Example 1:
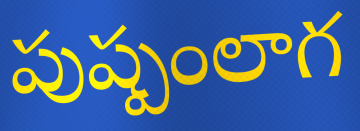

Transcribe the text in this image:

పుష్పంలాగ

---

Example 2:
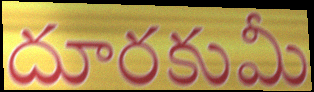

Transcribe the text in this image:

దూరకుమీ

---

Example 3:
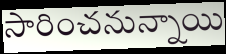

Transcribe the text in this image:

సారించనున్నాయి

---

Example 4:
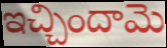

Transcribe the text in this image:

ఇచ్చిందామె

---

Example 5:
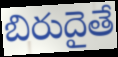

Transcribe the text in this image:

బిరుదైతే